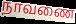
நாவணை